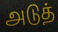
அடுத்